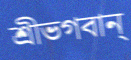
শ্রীভগবান্